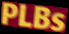
PLBs